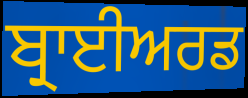
ਬ੍ਰਾਈਅਰਡ